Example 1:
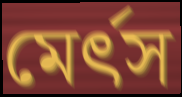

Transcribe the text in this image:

মের্ৎস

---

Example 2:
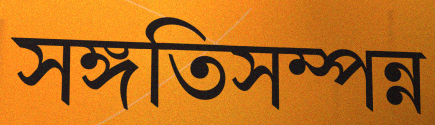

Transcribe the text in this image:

সঙ্গতিসম্পন্ন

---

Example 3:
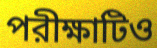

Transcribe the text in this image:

পরীক্ষাটিও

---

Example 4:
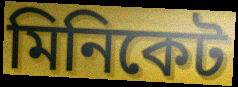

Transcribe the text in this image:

মিনিকেট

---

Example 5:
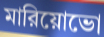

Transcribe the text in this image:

মারিয়োভো